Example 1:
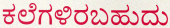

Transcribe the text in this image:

ಕಲೆಗಳಿರಬಹುದು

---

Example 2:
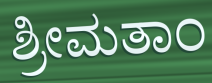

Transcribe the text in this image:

ಶ್ರೀಮತಾಂ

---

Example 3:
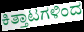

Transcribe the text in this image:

ಕಿತ್ತಾಟಗಳಿಂದ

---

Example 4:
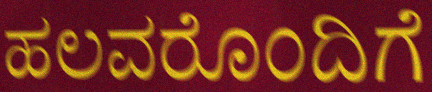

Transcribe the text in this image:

ಹಲವರೊಂದಿಗೆ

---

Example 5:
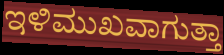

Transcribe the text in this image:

ಇಳಿಮುಖವಾಗುತ್ತಾ